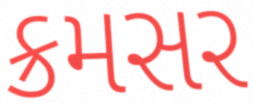
ક્રમસર